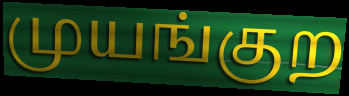
முயங்குற